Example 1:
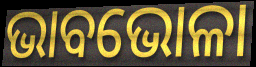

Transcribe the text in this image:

ଭାବଭୋଳା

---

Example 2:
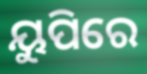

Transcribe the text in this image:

ୟୁପିରେ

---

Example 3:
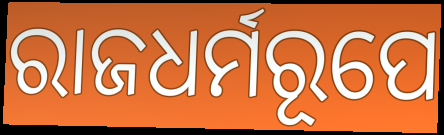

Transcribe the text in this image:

ରାଜଧର୍ମରୂପେ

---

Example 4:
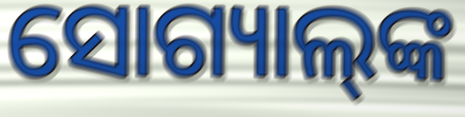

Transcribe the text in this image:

ସୋଗ୍ୟାଲ୍‌ଙ୍କ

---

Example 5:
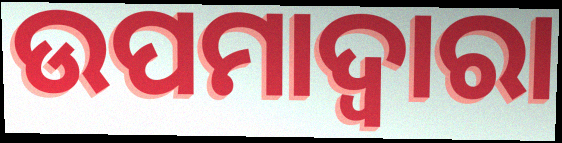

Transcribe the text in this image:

ଉପମାଦ୍ୱାରା